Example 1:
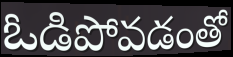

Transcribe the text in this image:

ఓడిపోవడంతో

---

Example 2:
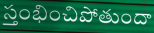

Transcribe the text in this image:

స్తంభించిపోతుందా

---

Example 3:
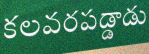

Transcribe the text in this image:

కలవరపడ్డాడు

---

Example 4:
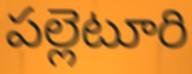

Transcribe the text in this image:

పల్లెటూరి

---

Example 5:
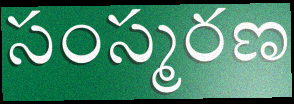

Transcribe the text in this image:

సంస్మరణ